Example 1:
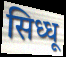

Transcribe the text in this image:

सिध्धू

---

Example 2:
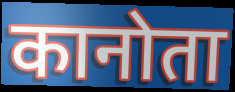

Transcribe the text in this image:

कानोता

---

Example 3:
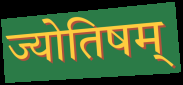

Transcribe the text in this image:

ज्योतिषम्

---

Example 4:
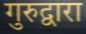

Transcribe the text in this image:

गुरुद्वारा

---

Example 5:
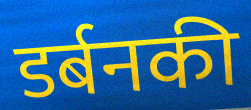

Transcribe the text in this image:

डर्बनकी